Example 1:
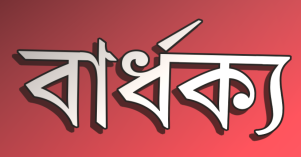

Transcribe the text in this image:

বার্ধক্য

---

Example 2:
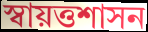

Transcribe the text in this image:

স্বায়ত্তশাসন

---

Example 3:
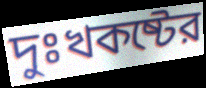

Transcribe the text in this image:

দুঃখকষ্টের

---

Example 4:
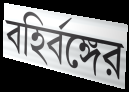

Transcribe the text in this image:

বহির্বঙ্গের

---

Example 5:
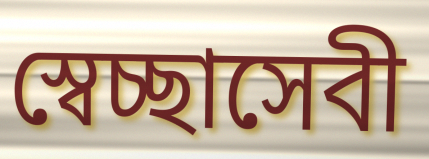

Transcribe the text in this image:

স্বেচ্ছাসেবী